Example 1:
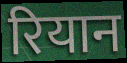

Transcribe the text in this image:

रियान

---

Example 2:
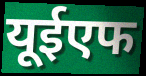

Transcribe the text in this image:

यूईएफ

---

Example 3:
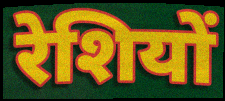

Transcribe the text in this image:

रेशियों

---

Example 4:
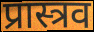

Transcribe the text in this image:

प्रास्त्रव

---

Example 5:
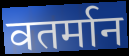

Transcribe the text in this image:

वतर्मान